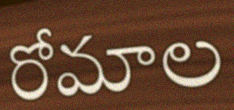
రోమాల